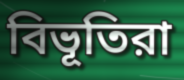
বিভূতিরা